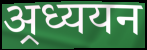
अ्रध्ययन